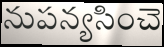
నుపన్యసించె